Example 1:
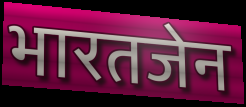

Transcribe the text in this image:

भारतजेन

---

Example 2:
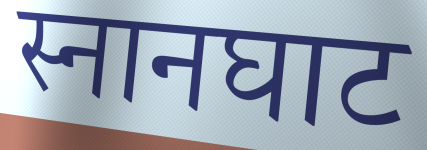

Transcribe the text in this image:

स्नानघाट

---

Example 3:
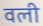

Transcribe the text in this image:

वली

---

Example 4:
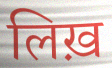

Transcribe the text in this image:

लिख़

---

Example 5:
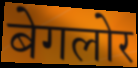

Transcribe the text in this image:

बेगलोर